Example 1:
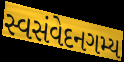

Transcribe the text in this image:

સ્વસંવેદનગમ્ય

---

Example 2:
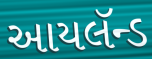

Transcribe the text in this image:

આયલૅન્ડ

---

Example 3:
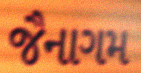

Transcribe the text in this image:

જૈનાગમ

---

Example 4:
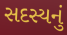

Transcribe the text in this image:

સદસ્યનું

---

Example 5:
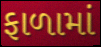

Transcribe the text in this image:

ફાળામાં